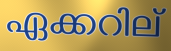
ഏക്കറില്